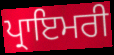
ਪ੍ਰਾਇਮਰੀ